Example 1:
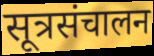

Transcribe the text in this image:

सूत्रसंचालन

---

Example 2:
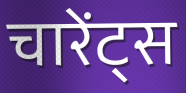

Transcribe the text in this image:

चारेंट्स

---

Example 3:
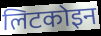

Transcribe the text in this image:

लिटकोइन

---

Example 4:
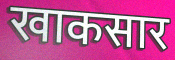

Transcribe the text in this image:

खाकसार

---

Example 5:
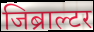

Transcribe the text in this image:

जिब्राल्टर